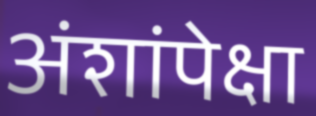
अंशांपेक्षा